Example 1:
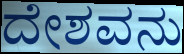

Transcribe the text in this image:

ದೇಶವನು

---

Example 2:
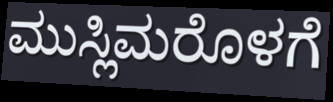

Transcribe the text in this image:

ಮುಸ್ಲಿಮರೊಳಗೆ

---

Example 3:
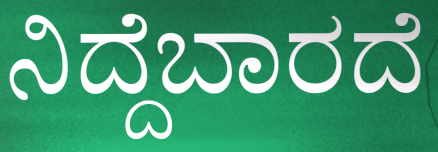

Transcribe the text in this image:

ನಿದ್ದೆಬಾರದೆ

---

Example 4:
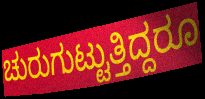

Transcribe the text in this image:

ಚುರುಗುಟ್ಟುತ್ತಿದ್ದರೂ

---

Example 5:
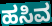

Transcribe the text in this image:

ಹಸಿವ